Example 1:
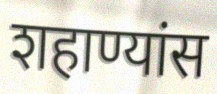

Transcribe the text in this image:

शहाण्यांस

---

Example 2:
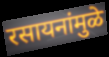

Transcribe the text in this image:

रसायनांमुळे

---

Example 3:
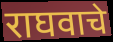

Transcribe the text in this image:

राघवाचे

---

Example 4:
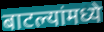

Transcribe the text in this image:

बाटल्यांमध्ये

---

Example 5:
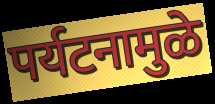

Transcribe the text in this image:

पर्यटनामुळे